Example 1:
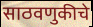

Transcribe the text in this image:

साठवणुकीचे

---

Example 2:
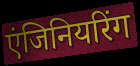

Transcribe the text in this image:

एंजिनियरिंग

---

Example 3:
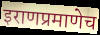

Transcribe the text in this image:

इराणप्रमाणेच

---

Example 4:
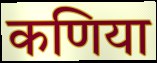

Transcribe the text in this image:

कणिया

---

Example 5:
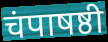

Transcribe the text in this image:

चंपाषष्ठी